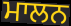
ਮਾਲਨ